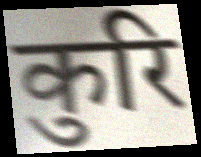
कुरि